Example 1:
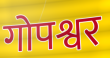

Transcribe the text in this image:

गोपश्वर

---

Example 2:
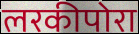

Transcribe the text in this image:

लरकीपोरा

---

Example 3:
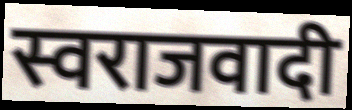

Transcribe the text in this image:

स्वराजवादी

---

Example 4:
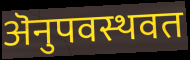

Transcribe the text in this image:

ऄनुपवस्थवत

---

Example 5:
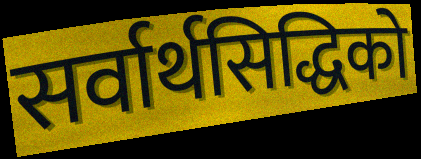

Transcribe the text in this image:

सर्वार्थसिद्धिको